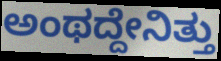
ಅಂಥದ್ದೇನಿತ್ತು